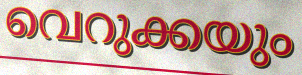
വെറുക്കയും